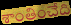
శాంతించేది